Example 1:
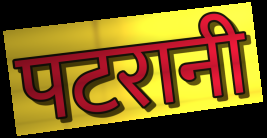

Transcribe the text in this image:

पटरानी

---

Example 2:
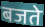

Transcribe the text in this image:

बजते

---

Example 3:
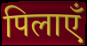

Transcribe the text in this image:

पिलाएँ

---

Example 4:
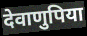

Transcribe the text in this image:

देवाणुपिया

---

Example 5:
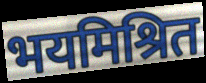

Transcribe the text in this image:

भयमिश्रित